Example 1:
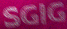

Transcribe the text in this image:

SGIG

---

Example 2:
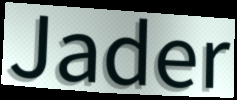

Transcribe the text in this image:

Jader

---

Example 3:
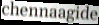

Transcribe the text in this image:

chennaagide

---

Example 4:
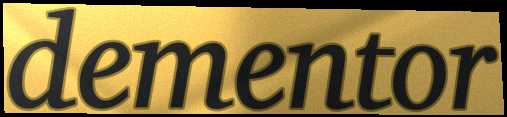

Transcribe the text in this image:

dementor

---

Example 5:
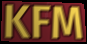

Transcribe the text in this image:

KFM